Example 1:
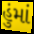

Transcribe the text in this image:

હુંમાં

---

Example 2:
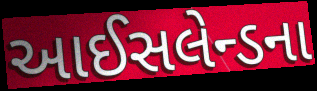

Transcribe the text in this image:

આઈસલેન્ડના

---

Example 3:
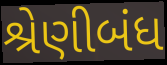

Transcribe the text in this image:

શ્રેણીબંધ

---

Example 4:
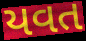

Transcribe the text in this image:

યવત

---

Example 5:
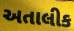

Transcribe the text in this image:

અતાલીક